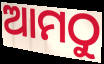
ଆମଠୁ